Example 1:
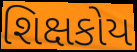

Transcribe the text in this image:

શિક્ષકોય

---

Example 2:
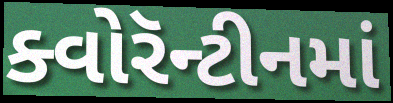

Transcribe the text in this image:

ક્વોરૅન્ટીનમાં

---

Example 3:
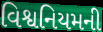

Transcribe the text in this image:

વિશ્વનિયમની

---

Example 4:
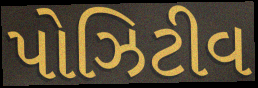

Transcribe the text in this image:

પોઝિટીવ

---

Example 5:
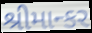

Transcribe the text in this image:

શ્રીમાન્કર